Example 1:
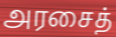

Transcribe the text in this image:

அரசைத்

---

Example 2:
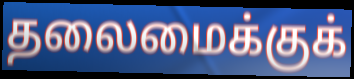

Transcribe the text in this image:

தலைமைக்குக்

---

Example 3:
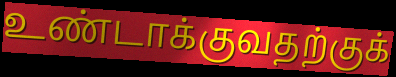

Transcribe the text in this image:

உண்டாக்குவதற்குக்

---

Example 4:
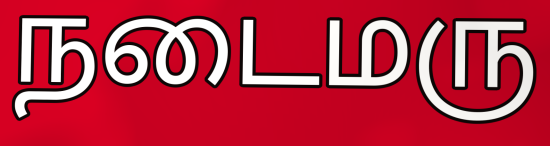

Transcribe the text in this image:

நடைமரு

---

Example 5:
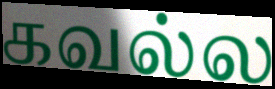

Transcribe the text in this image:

கவல்ல